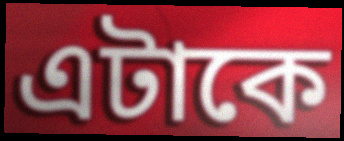
এটাকে